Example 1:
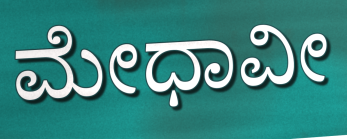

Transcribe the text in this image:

ಮೇಧಾವೀ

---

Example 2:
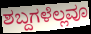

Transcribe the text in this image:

ಶಬ್ದಗಳೆಲ್ಲವೂ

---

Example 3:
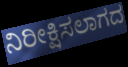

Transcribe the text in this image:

ನಿರೀಕ್ಷಿಸಲಾಗದ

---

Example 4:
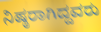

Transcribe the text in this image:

ನಿಷ್ಠರಾಗಿದ್ದವರು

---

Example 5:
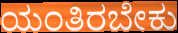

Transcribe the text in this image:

ಯಂತಿರಬೇಕು